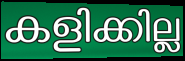
കളിക്കില്ല